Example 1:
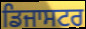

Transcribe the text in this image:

ਡਿਜਾਸਟਰ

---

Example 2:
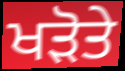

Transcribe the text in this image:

ਖੜੋਤੇ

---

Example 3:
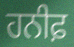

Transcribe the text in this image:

ਹਨੀਫ਼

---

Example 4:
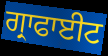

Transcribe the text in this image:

ਗ੍ਰਾਫਾਈਟ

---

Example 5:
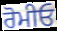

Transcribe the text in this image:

ਰੋਮੀਓ